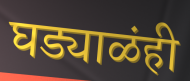
घड्याळंही